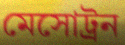
মেসোট্রন